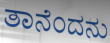
ತಾನೆಂದನು